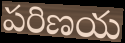
పరిణయ